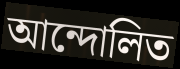
আন্দোলিত